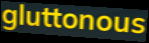
gluttonous